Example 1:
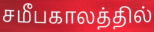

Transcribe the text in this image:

சமீபகாலத்தில்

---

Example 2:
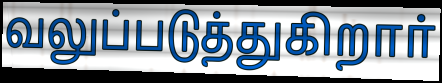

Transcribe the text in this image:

வலுப்படுத்துகிறார்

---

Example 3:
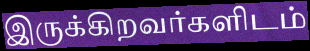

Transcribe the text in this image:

இருக்கிறவர்களிடம்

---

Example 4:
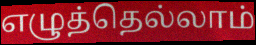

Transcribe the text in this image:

எழுத்தெல்லாம்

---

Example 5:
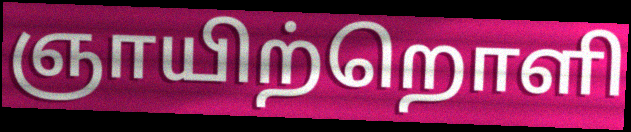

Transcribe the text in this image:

ஞாயிற்றொளி